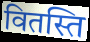
वितस्ति